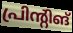
പ്രിന്റിങ്